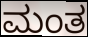
ಮಂತ